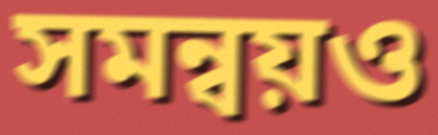
সমন্বয়ও